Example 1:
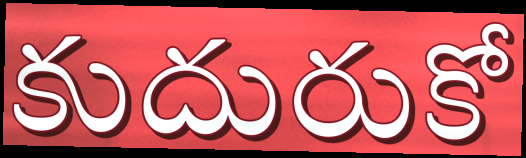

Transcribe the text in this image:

కుదురుకో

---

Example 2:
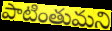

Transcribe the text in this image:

పాటింతుమని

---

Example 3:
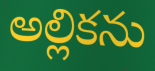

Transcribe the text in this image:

అల్లికను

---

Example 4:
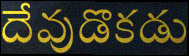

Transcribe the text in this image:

దేవుడొకడు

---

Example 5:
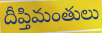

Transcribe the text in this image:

దీప్తిమంతులు